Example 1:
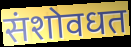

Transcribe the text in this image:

संशोवधत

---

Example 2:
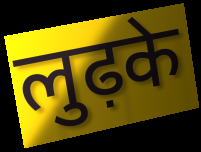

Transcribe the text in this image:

लुढ़के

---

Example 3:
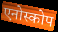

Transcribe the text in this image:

एनोस्कोप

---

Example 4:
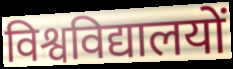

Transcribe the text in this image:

विश्वविद्यालयों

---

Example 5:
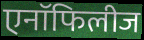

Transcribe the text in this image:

एनॉफिलीज